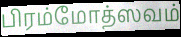
பிரம்மோத்ஸவம்